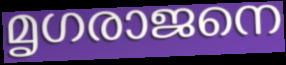
മൃഗരാജനെ